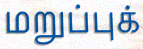
மறுப்புக்